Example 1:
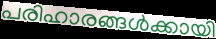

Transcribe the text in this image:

പരിഹാരങ്ങൾക്കായി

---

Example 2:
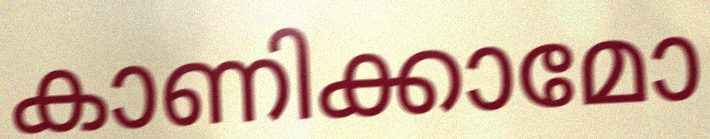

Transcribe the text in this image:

കാണിക്കാമോ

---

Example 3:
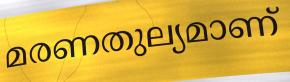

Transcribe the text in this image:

മരണതുല്യമാണ്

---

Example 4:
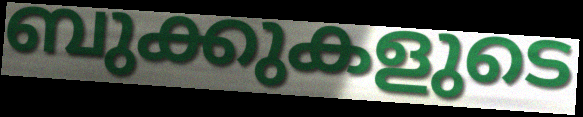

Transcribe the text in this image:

ബുക്കുകളുടെ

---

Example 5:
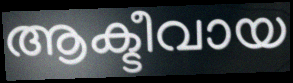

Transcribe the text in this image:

ആക്ടീവായ